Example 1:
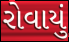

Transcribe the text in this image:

રોવાયું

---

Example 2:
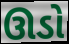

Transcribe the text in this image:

ઊડો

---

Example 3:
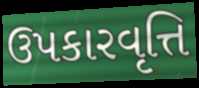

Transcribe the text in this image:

ઉપકારવૃત્તિ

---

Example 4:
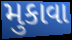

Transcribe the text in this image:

મુકાવા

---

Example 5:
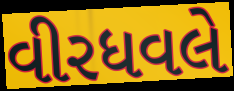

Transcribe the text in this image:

વીરધવલે